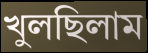
খুলছিলাম